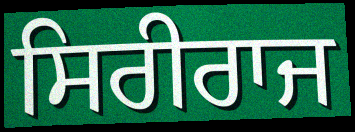
ਸਿਰੀਰਾਜ